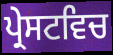
ਪ੍ਰੇਸਟਵਿਚ